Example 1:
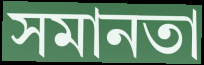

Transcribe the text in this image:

সমানতা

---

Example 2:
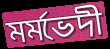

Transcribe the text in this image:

মৰ্মভেদী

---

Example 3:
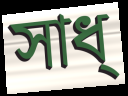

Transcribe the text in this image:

সাধ্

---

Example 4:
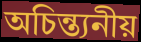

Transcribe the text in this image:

অচিন্ত্যনীয়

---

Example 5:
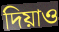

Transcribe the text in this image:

দিয়াও